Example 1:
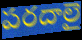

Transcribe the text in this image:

పరదాలై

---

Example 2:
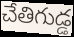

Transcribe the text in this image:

చేతిగుడ్డ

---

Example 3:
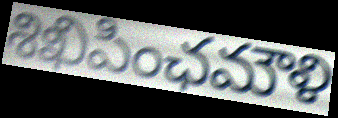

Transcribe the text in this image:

శిఖిపింఛమౌళి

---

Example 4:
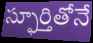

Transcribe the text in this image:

స్ఫూర్తితోనే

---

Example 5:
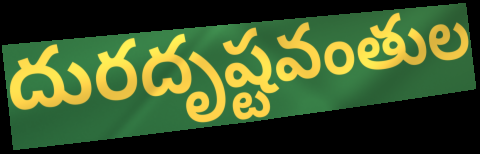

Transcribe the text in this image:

దురదృష్టవంతుల